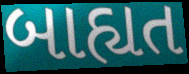
બાહ્યત